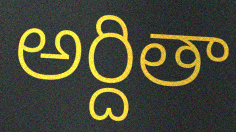
అర్దితా